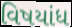
વિષયાંધ